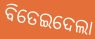
ବିତେଇଦେଲା